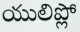
యులిప్లో